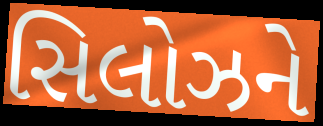
સિલોઝને